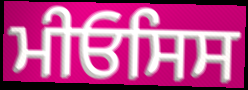
ਮੀਓਸਿਸ